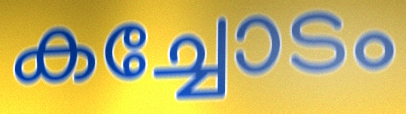
കച്ചോടം